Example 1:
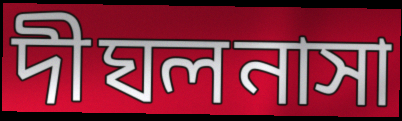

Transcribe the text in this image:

দীঘলনাসা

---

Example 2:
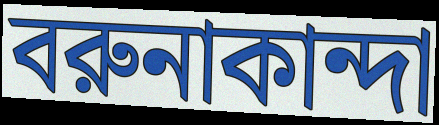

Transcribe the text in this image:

বরুনাকান্দা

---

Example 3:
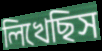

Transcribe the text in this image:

লিখেছিস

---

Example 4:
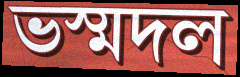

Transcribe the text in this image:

ভস্মদল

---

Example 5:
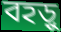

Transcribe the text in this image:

বহড়ু